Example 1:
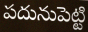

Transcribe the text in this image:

పదునుపెట్టి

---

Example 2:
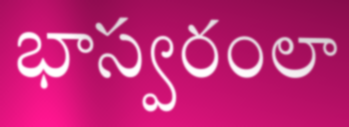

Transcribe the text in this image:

భాస్వరంలా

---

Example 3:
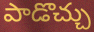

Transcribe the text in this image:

పాడొచ్చు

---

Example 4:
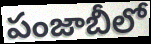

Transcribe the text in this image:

పంజాబీలో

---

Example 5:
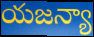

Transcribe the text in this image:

యజన్యా